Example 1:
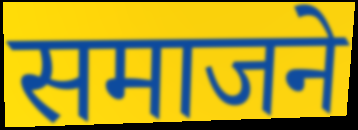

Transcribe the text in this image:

समाजने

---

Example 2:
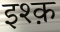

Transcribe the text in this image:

इश्क़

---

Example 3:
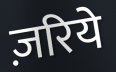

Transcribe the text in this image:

ज़रिये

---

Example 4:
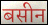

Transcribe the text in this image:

बसीन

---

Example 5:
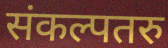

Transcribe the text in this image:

संकल्पतरु